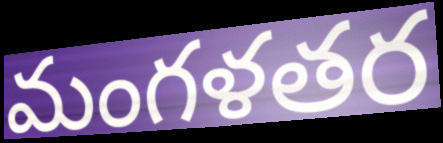
మంగళతర